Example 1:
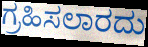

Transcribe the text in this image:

ಗ್ರಹಿಸಲಾರದು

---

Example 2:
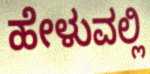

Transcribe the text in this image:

ಹೇಳುವಲ್ಲಿ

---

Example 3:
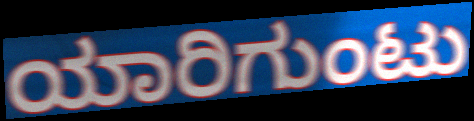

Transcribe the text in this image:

ಯಾರಿಗುಂಟು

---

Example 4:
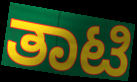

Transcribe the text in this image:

ತಾಟಿ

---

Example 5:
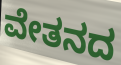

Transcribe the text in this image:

ವೇತನದ